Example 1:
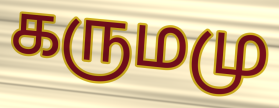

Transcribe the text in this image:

கருமமு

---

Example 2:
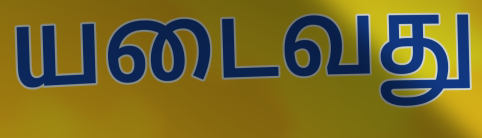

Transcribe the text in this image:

யடைவது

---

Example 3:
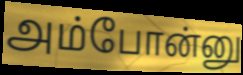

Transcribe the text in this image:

அம்போன்னு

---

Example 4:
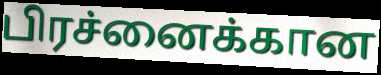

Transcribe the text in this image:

பிரச்னைக்கான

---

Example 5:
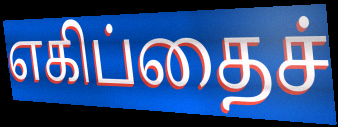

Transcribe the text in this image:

எகிப்தைச்